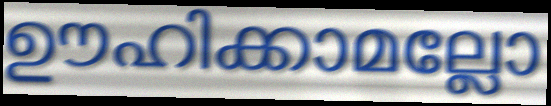
ഊഹിക്കാമല്ലോ